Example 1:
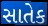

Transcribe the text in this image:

સાતેક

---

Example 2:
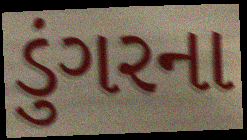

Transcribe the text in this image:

ડુંગરના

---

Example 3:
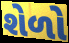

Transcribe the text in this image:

શેળો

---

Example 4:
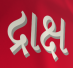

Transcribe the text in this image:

દ્રાક્ષ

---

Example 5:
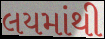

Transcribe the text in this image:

લયમાંથી